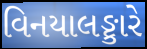
વિનયાલઙ્કારે